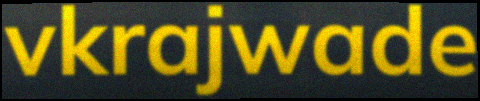
vkrajwade